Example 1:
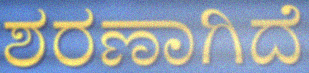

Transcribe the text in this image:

ಶರಣಾಗಿದೆ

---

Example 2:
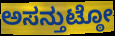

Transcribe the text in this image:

ಅಸನ್ತುಟ್ಠೋ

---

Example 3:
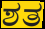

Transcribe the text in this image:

ಶತ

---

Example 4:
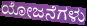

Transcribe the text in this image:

ಯೋಜನೆಗಳು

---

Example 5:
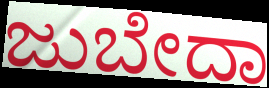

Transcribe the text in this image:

ಜುಬೇದಾ